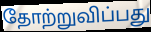
தோற்றுவிப்பது